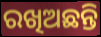
ରଖିଅଛନ୍ତି